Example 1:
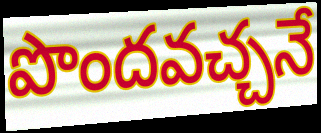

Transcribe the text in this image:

పొందవచ్చనే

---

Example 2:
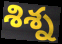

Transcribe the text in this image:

శిశ్న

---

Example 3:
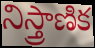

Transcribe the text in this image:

నిస్త్రాణిక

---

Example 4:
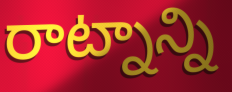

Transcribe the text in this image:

రాట్నాన్ని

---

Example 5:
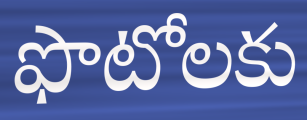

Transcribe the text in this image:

ఫొటోలకు